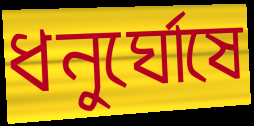
ধনুর্ঘোষে